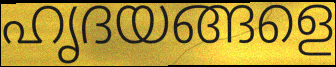
ഹൃദയങ്ങളെ